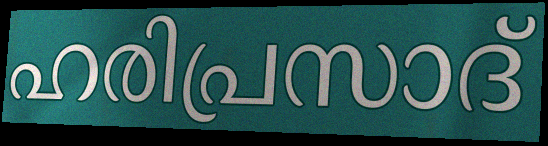
ഹരിപ്രസാദ്